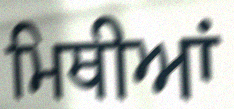
ਮਿਥੀਆਂ